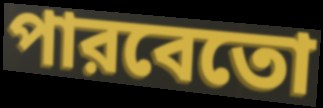
পারবেতো